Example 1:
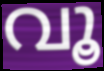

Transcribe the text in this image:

വൂ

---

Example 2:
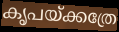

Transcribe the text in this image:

കൃപയ്ക്കത്രേ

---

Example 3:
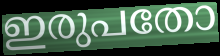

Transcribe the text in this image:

ഇരുപതോ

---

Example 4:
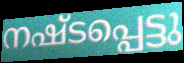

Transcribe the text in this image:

നഷ്ടപ്പെട്ടു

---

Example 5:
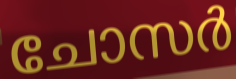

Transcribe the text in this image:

ചോസർ